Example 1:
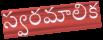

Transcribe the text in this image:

స్వరమాలిక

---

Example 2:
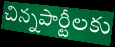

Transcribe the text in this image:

చిన్నపార్టీలకు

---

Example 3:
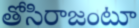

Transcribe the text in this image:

తోసిరాజంటూ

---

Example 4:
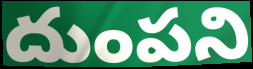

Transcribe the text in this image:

దుంపని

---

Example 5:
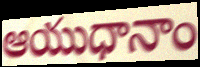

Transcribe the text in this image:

ఆయుధానాం